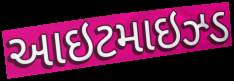
આઇટમાઇઝ્ડ